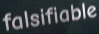
falsifiable